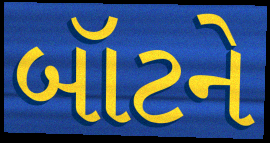
બૉટને